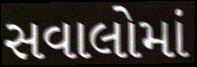
સવાલોમાં